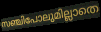
സഞ്ചിപോലുമില്ലാതെ